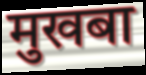
मुखबा